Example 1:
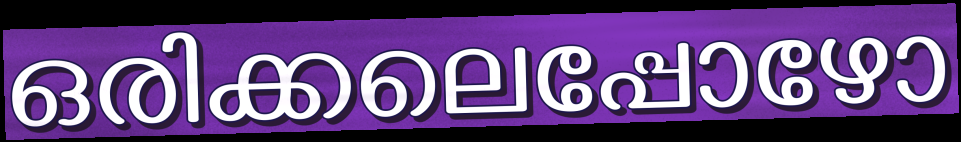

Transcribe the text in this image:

ഒരിക്കലെപ്പോഴോ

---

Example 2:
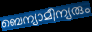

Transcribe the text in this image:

ബെന്യാമീന്യരും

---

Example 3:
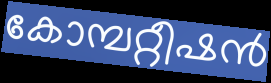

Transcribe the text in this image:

കോമ്പറ്റീഷൻ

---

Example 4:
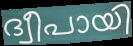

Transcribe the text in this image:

ദ്വീപായി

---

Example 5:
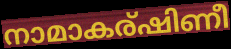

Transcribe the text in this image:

നാമാകര്ഷിണീ